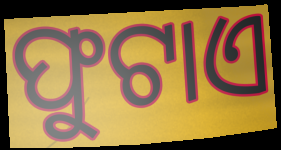
ଫୁଟାଏ